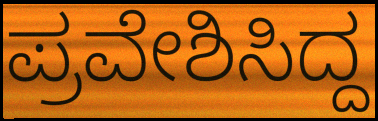
ಪ್ರವೇಶಿಸಿದ್ದ